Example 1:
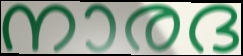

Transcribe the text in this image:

നാരദ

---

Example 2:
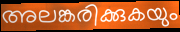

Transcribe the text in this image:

അലങ്കരിക്കുകയും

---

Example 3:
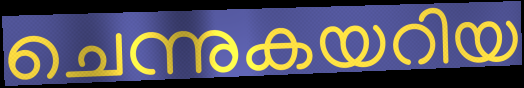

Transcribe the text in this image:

ചെന്നുകയറിയ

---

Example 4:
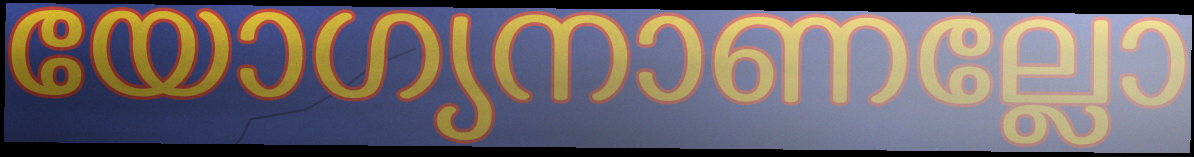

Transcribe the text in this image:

യോഗ്യനാണല്ലോ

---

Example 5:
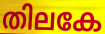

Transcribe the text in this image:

തിലകേ